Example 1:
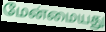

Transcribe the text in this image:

மேன்மையது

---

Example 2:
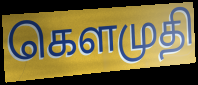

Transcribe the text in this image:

கௌமுதி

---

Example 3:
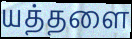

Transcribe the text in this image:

யத்தளை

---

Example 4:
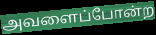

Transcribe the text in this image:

அவளைப்போன்ற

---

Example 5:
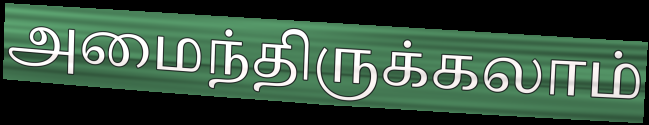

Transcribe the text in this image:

அமைந்திருக்கலாம்